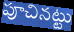
పూచినట్టు